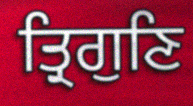
ਤ੍ਰਿਗੁਣਿ